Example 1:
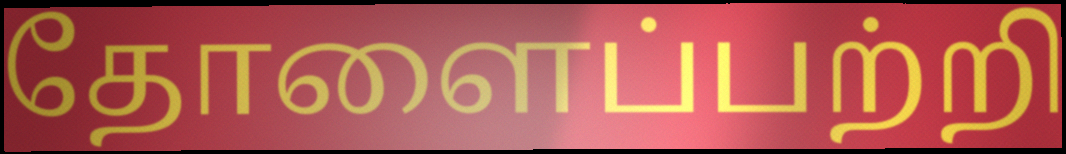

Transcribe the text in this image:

தோளைப்பற்றி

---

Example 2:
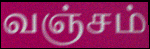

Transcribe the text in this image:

வஞ்சம்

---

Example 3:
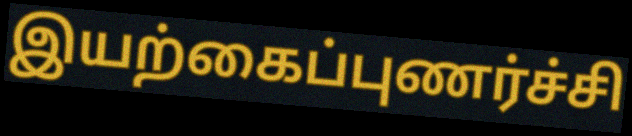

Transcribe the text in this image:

இயற்கைப்புணர்ச்சி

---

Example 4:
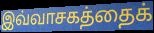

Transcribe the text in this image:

இவ்வாசகத்தைக்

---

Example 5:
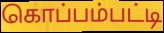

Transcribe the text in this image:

கொப்பம்பட்டி